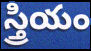
స్త్రియం